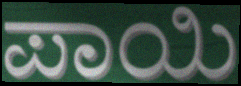
ಪಾಯಿ